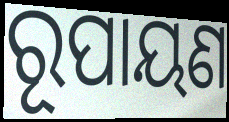
ରୂପାୟଣ